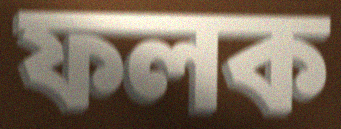
ফলক